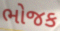
ભોજક